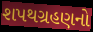
શપથગ્રહણનો